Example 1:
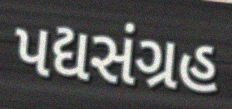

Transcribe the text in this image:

પદ્યસંગ્રહ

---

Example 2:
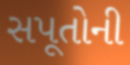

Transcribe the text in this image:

સપૂતોની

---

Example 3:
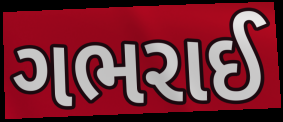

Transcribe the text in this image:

ગભરાઈ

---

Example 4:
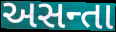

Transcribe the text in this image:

અસન્તા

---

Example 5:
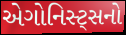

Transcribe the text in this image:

એગોનિસ્ટ્સનો